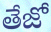
తేజో